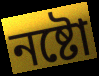
নষ্টো